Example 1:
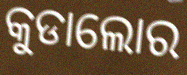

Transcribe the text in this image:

କୁଡାଲୋର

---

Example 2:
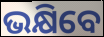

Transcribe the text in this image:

ଭକ୍ଷିବେ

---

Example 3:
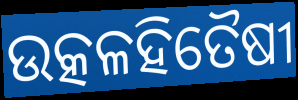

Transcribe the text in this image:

ଉତ୍କଳହିତୈଷୀ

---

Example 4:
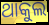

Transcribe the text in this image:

ଥାକୁଲ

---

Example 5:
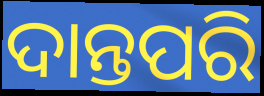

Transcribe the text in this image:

ଦାନ୍ତପରି